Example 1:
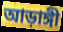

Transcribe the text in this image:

আড়াঙ্গী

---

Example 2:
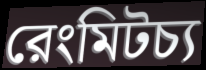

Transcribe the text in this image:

রেংমিটচ্য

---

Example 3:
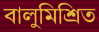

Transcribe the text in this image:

বালুমিশ্রিত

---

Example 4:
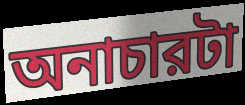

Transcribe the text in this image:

অনাচারটা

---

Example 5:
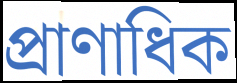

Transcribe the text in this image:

প্রাণাধিক